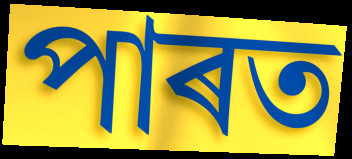
পাৰত